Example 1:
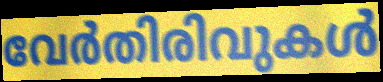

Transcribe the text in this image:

വേർതിരിവുകൾ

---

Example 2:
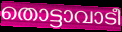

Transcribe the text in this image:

തൊട്ടാവാടീ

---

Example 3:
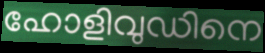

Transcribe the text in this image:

ഹോളിവുഡിനെ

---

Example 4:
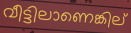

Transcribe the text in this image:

വീട്ടിലാണെങ്കില്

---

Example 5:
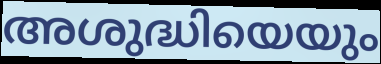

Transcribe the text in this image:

അശുദ്ധിയെയും